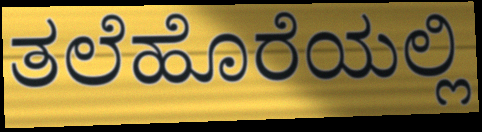
ತಲೆಹೊರೆಯಲ್ಲಿ